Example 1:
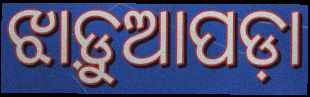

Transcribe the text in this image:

ଝାଡ଼ୁଆପଡ଼ା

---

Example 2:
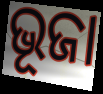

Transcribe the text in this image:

ଭୂଜା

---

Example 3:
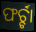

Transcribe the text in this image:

ଫର୍ଚ୍ଚା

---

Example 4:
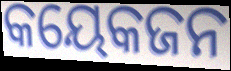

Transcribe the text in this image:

କୟେକଜନ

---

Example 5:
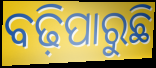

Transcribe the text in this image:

ବଢ଼ିପାରୁଛି